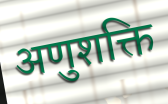
अणुशक्ति